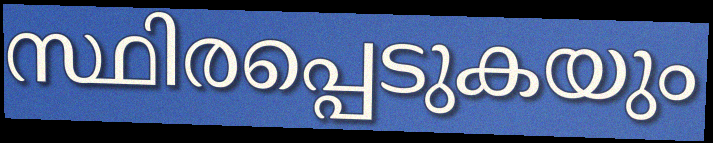
സ്ഥിരപ്പെടുകയും